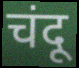
चंदू